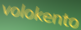
volokento